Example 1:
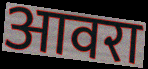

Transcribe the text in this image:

आवरा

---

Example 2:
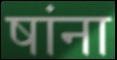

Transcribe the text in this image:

षांना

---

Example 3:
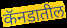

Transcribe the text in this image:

कॅनडातील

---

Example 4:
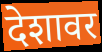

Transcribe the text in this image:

देशावर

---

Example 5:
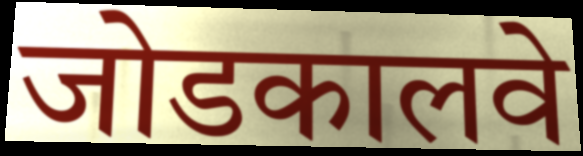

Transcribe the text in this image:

जोडकालवे